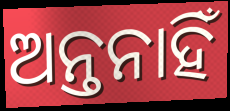
ଅନ୍ତନାହିଁ